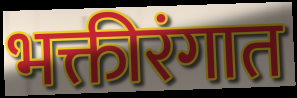
भक्तीरंगात